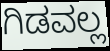
ಗಿಡವಲ್ಲ